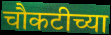
चौकटीच्या